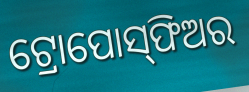
ଟ୍ରୋପୋସ୍‌ଫିଅର